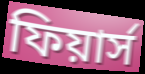
ফিয়ার্স